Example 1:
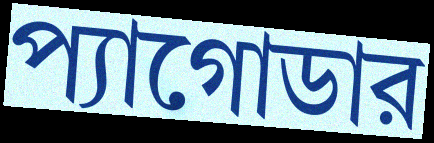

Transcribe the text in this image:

প্যাগোডার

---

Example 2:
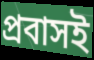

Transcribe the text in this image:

প্রবাসই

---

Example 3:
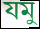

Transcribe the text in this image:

যমু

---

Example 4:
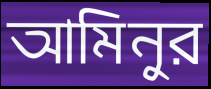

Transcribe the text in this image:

আমিনুর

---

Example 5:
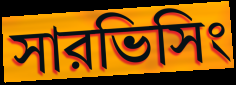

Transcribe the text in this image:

সারভিসিং